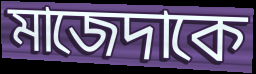
মাজেদাকে